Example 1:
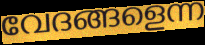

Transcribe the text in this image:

വേദങ്ങളെന്ന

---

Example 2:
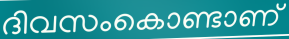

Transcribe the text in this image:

ദിവസംകൊണ്ടാണ്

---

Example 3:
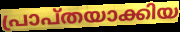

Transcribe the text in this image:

പ്രാപ്തയാക്കിയ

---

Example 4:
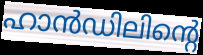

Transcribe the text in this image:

ഹാൻഡിലിന്റെ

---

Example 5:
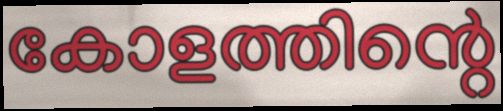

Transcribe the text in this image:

കോളത്തിന്റെ